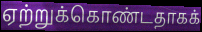
ஏற்றுக்கொண்டதாகக்